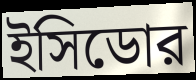
ইসিডোর